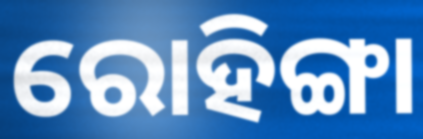
ରୋହିଙ୍ଗା